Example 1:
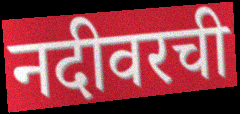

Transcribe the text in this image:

नदीवरची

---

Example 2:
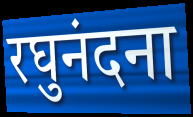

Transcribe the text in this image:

रघुनंदना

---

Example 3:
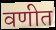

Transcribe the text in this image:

वणीत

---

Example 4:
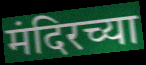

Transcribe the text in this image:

मंदिरच्या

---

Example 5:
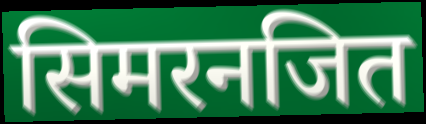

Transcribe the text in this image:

सिमरनजित